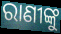
ରାଣୀଙ୍କୁ